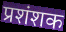
प्रशंशक